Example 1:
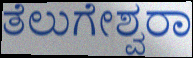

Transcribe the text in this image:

ತೆಲುಗೇಶ್ವರಾ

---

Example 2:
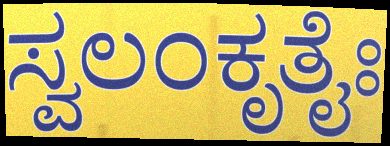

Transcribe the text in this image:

ಸ್ವಲಂಕೃತೈಃ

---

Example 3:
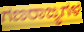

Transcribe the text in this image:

ಗಣರಾಜ್ಯಗಳ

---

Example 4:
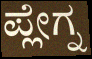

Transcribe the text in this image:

ಪ್ಲೇಗ್ನ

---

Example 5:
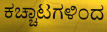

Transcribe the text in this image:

ಕಚ್ಚಾಟಗಳಿಂದ